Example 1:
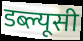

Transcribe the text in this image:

डब्ल्यूसी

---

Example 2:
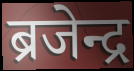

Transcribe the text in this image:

ब्रजेन्द्र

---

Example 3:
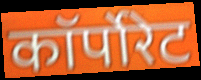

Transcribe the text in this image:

कॉर्पोरेट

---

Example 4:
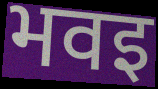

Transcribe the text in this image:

भवइ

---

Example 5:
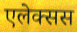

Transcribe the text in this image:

एलेक्सस